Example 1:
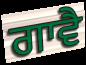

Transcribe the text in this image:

ਗਾਵੈ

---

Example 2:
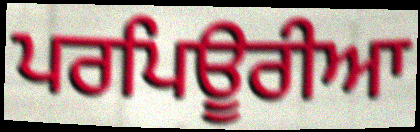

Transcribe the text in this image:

ਪਰਪਿਊਰੀਆ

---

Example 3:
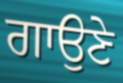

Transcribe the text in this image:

ਗਾਉਣੇ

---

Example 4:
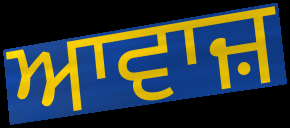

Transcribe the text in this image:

ਆਵਾਜ਼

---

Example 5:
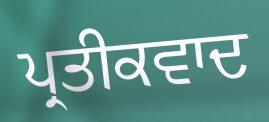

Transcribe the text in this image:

ਪ੍ਰਤੀਕਵਾਦ